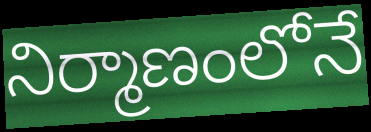
నిర్మాణంలోనే